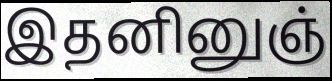
இதனினுஞ்